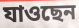
যাওছেন